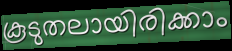
കൂടുതലായിരിക്കാം